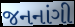
જનનાંગી